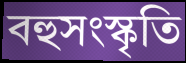
বহুসংস্কৃতি